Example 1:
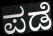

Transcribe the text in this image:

ಪಡೆ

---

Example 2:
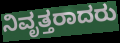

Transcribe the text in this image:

ನಿವೃತ್ತರಾದರು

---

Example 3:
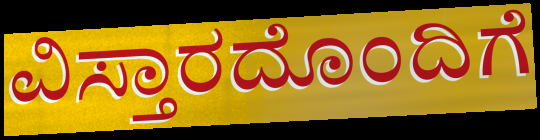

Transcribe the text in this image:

ವಿಸ್ತಾರದೊಂದಿಗೆ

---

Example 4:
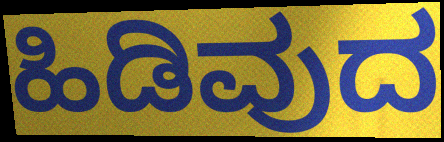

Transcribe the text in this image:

ಹಿಡಿವುದ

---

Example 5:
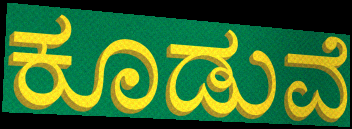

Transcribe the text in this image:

ಕೂಡುವೆ